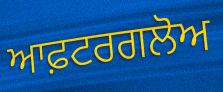
ਆਫ਼ਟਰਗਲੋਅ